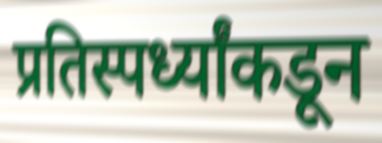
प्रतिस्पर्ध्यांकडून